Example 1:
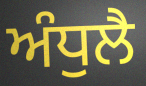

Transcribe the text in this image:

ਅੰਧੁਲੈ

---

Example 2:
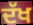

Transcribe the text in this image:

ਦੱਖ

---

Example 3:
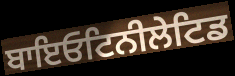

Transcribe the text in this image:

ਬਾਇਓਟਿਨੀਲੇਟਿਡ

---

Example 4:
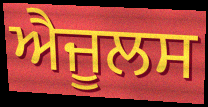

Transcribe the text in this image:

ਐਜੂਲਸ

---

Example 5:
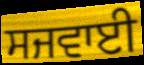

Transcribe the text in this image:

ਸਜਵਾਈ